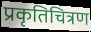
प्रकृतिचित्रण